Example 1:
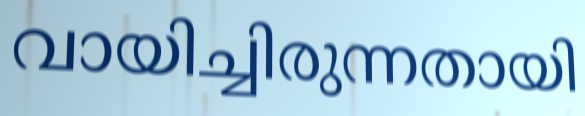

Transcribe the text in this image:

വായിച്ചിരുന്നതായി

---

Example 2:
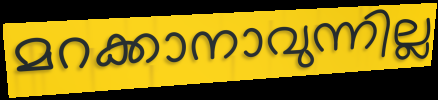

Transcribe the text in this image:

മറക്കാനാവുന്നില്ല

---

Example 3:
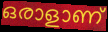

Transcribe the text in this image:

ഒരാളാണ്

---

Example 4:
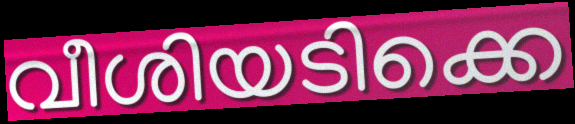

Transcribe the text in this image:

വീശിയടിക്കെ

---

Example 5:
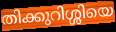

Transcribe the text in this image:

തിക്കുറിശ്ശിയെ